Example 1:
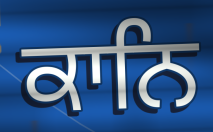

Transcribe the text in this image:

ਕਾਨਿ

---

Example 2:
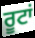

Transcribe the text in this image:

ਰੂਟਾਂ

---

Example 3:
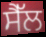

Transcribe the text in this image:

ਸੈੱਲ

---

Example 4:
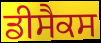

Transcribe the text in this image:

ਡੀਸੈਕਸ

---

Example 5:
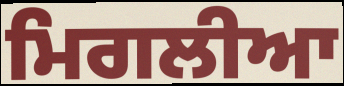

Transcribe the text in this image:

ਮਿਗਲੀਆ